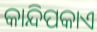
କାନ୍ଦିପକାଏ